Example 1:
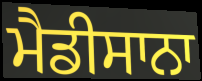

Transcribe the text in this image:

ਮੈਡੀਸਾਨਾ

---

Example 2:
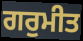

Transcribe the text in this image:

ਗਰੁਮੀਤ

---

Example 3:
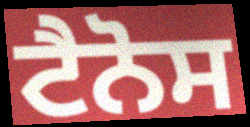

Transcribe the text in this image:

ਟੈਨੋਸ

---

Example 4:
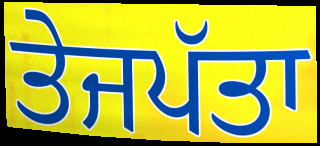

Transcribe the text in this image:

ਤੇਜਪੱਤਾ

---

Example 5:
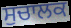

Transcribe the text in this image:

ਸੁਚਾਲਕ